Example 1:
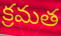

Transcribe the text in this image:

క్రమత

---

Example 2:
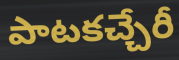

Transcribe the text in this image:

పాటకచ్చేరీ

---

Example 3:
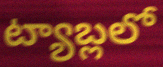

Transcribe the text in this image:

ట్యాబ్లలో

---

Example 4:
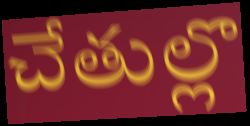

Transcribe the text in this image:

చేతుల్లొ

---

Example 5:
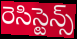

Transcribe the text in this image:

రెసిస్టెన్స్